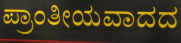
ಪ್ರಾಂತೀಯವಾದದ